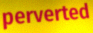
perverted